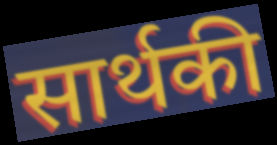
सार्थकी